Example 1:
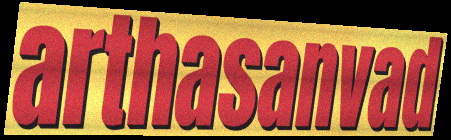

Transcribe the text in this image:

arthasanvad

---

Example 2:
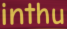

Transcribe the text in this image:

inthu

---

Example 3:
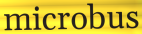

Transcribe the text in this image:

microbus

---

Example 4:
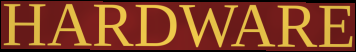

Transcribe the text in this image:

HARDWARE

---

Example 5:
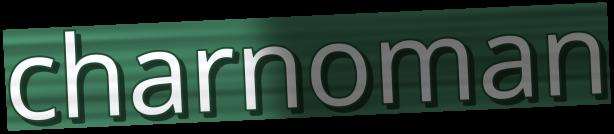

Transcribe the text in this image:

charnoman